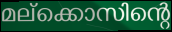
മല്ക്കൊസിന്റെ